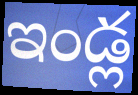
ఇండ్ల